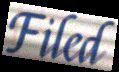
Filed